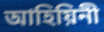
আহিয়িনী